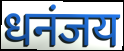
धनंजय